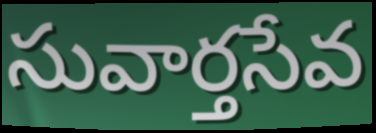
సువార్తసేవ